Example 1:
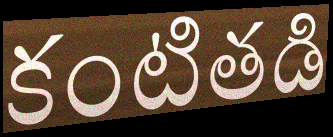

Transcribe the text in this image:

కంటితడి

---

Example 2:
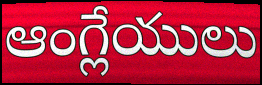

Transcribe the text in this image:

ఆంగ్లేయులు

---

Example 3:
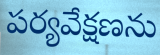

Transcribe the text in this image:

పర్యవేక్షణను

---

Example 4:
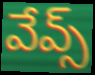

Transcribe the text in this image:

వేవ్స్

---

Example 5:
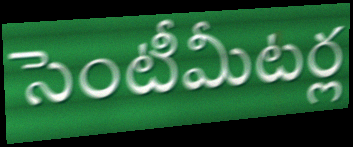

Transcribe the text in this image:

సెంటీమీటర్ల